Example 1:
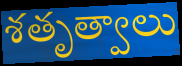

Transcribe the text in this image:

శతృత్వాలు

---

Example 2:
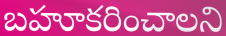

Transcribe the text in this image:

బహూకరించాలని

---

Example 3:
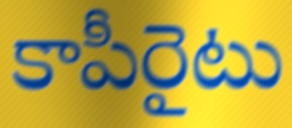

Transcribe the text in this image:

కాపీరైటు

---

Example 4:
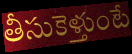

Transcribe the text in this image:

తీసుకెళ్తుంటే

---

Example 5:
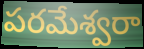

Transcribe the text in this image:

పరమేశ్వరా